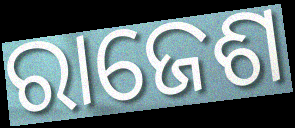
ରାଜେଶ